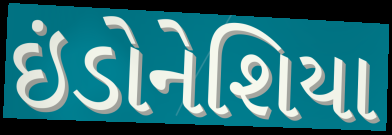
ઇંડોનેશિયા